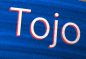
Tojo